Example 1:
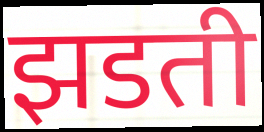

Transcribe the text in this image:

झडती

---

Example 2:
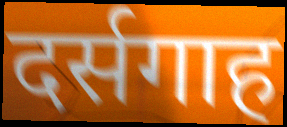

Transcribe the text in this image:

दर्सगाह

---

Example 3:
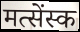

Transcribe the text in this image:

मत्सेंस्क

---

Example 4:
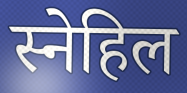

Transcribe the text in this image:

स्नेहिल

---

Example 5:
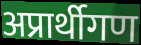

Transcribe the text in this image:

अप्रार्थीगण